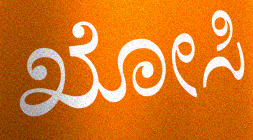
ಖೋಸಿ